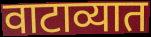
वाटाव्यात